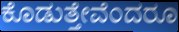
ಕೊಡುತ್ತೇವೆಂದರೂ